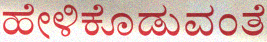
ಹೇಳಿಕೊಡುವಂತೆ